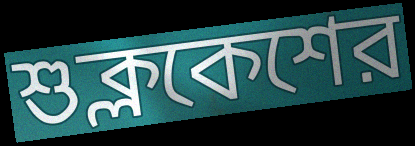
শুক্লকেশের